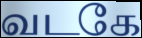
வடகே